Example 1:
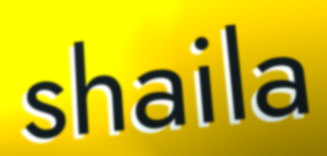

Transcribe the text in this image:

shaila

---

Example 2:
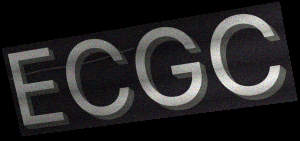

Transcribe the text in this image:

ECGC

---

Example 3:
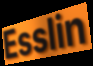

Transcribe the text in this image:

Esslin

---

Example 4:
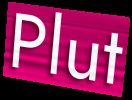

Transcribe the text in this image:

Plut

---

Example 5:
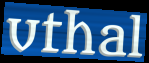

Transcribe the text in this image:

uthal